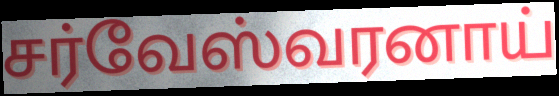
சர்வேஸ்வரனாய்